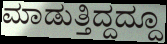
ಮಾಡುತ್ತಿದ್ದದ್ದೂ